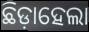
ଛିଡ଼ାହେଲା